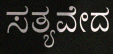
ಸತ್ಯವೇದ